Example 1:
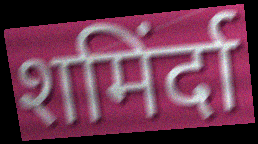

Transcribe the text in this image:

शमिंर्दा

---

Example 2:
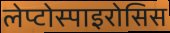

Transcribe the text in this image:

लेप्टोस्पाइरोसिस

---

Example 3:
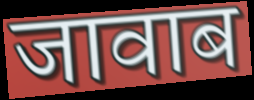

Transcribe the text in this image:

जावाब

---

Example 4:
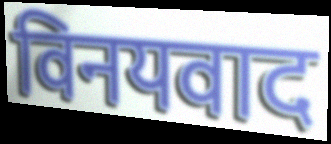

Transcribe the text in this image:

विनयवाद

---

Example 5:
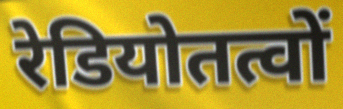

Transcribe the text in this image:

रेडियोतत्वों